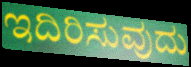
ಇದಿರಿಸುವುದು